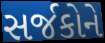
સર્જકોને